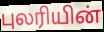
புலரியின்